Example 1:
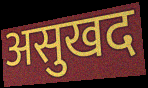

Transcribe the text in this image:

असुखद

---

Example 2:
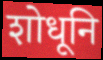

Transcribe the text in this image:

शोधूनि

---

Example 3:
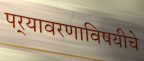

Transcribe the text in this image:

पर्यावरणाविषयीचे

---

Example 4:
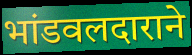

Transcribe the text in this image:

भांडवलदाराने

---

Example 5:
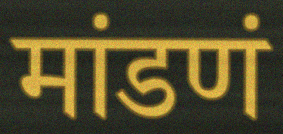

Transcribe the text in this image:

मांडणं